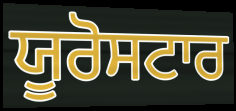
ਯੂਰੋਸਟਾਰ